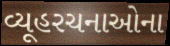
વ્યૂહરચનાઓના